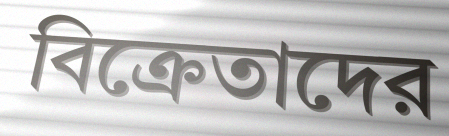
বিক্রেতাদের